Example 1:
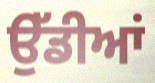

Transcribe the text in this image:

ਉੱਡੀਆਂ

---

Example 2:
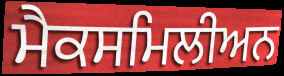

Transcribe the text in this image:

ਮੈਕਸਮਿਲੀਅਨ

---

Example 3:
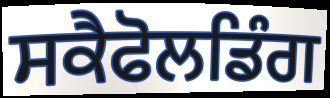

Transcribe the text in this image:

ਸਕੈਫੋਲਡਿੰਗ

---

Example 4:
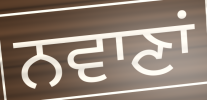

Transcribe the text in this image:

ਨਵਾਣਾਂ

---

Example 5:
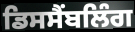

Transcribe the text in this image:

ਡਿਸਸੈਂਬਲਿੰਗ